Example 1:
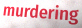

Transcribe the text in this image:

murdering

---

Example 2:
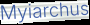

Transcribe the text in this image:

Myiarchus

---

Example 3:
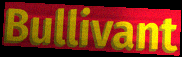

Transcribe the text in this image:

Bullivant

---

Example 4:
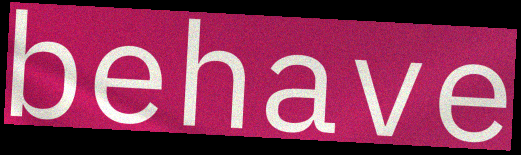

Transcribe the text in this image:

behave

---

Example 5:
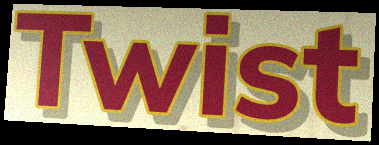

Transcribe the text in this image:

Twist